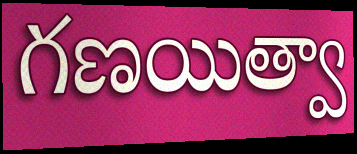
గణయిత్వా